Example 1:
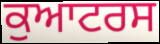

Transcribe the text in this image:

ਕੁਆਟਰਸ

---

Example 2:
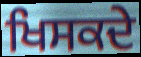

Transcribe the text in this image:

ਖਿਸਕਦੇ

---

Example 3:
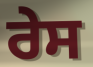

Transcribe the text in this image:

ਰੇਸ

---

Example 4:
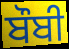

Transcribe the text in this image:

ਬੌਬੀ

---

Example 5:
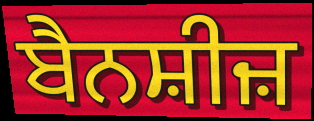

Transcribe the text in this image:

ਬੈਨਸ਼ੀਜ਼